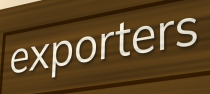
exporters